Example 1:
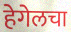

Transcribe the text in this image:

हेगेलचा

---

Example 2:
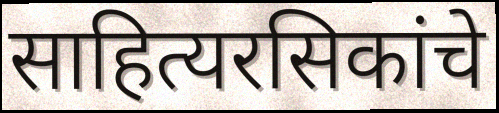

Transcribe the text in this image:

साहित्यरसिकांचे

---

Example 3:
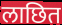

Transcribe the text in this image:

लाछित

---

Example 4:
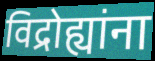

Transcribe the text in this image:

विद्रोह्यांना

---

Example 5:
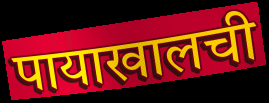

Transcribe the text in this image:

पायाखालची